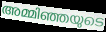
അമ്മിഞ്ഞയുടെ